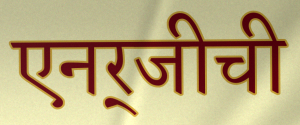
एनर्जीची